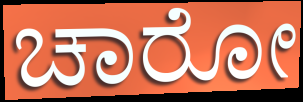
ಚಾರೋ